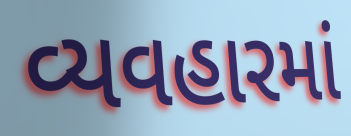
વ્યવહારમાં